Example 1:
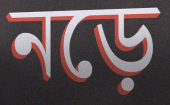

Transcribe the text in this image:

নড়ে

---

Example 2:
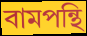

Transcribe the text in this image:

বামপন্থি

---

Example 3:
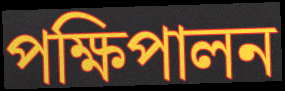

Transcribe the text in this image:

পক্ষিপালন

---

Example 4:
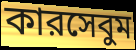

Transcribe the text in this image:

কারসেবুম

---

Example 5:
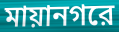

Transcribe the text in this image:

মায়ানগরে